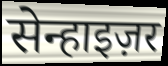
सेन्हाइज़र